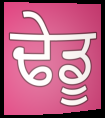
ਢੇਡੂ